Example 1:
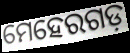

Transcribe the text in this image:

ମେହେରଗଡ଼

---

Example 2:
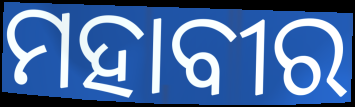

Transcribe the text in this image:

ମହାବୀର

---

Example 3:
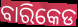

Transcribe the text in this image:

ବାରିକେଡ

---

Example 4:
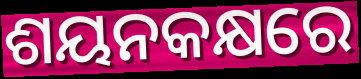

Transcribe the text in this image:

ଶୟନକକ୍ଷରେ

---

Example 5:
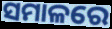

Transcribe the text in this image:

ସମାଳରେ